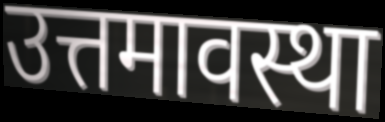
उत्तमावस्था